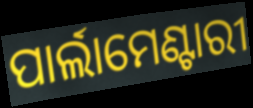
ପାର୍ଲାମେଣ୍ଟାରୀ